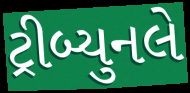
ટ્રીબ્યુનલે